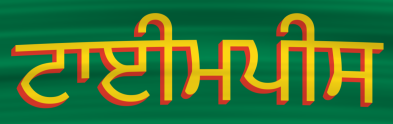
ਟਾਈਮਪੀਸ